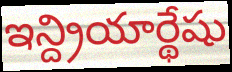
ఇన్ద్రియార్థేషు